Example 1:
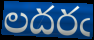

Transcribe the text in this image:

లదరఁ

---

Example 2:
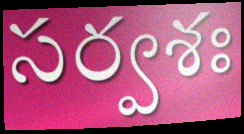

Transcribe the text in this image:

సర్వశః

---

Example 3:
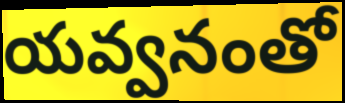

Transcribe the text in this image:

యవ్వనంతో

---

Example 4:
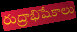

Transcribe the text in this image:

రుద్రాభిషేకాలు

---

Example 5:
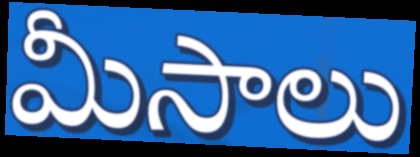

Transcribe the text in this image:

మీసాలు